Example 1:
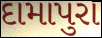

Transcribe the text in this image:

દામાપુરા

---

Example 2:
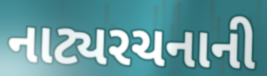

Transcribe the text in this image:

નાટ્યરચનાની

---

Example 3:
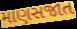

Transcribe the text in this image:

માણસજાત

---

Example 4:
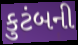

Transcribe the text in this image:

કુટંબની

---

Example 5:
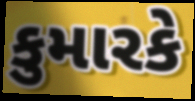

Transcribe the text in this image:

કુમારકે